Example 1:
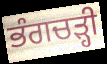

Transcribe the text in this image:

ਭੰਗਚੜ੍ਹੀ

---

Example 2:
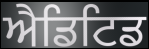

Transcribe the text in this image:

ਐਡਿਟਿਡ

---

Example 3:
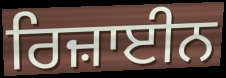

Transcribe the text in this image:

ਰਿਜ਼ਾਈਨ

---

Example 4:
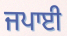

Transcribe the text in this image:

ਜਪਾਈ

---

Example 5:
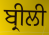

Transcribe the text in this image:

ਬ੍ਰੀਲੀ